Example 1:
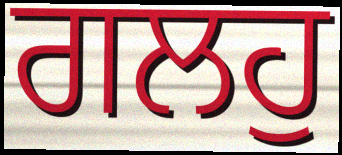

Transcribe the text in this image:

ਗਲਹੁ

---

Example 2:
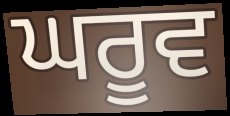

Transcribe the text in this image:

ਘਰੂਵ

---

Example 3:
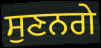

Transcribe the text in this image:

ਸੁਣਨਗੇ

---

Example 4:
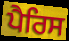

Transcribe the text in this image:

ਪੈਰਿਸ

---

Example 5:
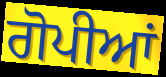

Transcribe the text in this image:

ਗੋਪੀਆਂ